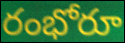
రంభోరూ